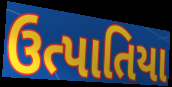
ઉત્પાતિયા